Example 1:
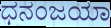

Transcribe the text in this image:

ಧನಂಜಯಾ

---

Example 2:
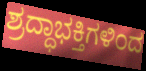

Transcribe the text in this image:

ಶ್ರದ್ಧಾಭಕ್ತಿಗಳಿಂದ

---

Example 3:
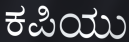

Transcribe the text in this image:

ಕಪಿಯು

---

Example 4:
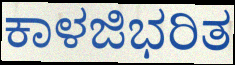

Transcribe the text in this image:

ಕಾಳಜಿಭರಿತ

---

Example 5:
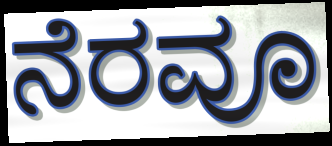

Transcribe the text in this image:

ನೆರವೂ